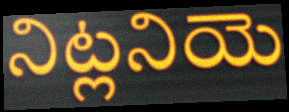
నిట్లనియె